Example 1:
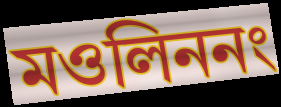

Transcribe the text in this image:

মওলিননং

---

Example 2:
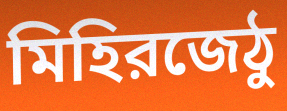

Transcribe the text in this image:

মিহিরজেঠু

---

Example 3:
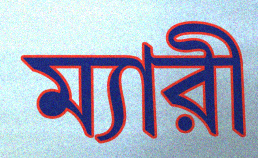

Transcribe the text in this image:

ম্যারী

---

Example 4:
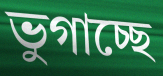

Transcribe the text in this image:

ভুগাচ্ছে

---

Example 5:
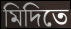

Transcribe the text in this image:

মিদিতে